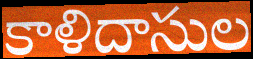
కాళిదాసుల